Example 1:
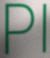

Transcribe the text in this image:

Pl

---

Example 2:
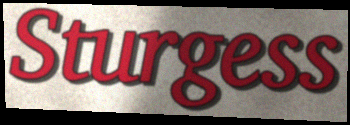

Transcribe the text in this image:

Sturgess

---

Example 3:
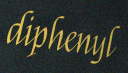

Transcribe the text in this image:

diphenyl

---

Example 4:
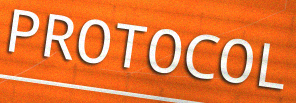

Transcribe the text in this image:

PROTOCOL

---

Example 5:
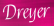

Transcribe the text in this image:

Dreyer